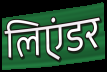
लिएंडर